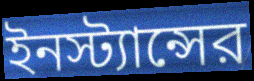
ইনস্ট্যান্সের